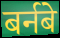
बर्नबे